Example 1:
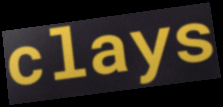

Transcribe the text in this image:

clays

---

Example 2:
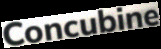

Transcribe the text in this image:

Concubine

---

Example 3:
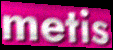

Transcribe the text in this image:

metis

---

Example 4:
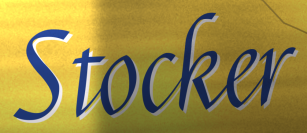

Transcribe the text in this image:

Stocker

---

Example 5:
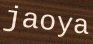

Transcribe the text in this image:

jaoya